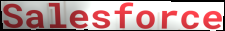
Salesforce